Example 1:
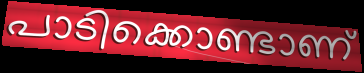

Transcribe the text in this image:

പാടിക്കൊണ്ടാണ്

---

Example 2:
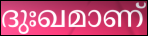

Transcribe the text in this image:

ദുഃഖമാണ്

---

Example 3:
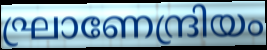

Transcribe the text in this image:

ഘ്രാണേന്ദ്രിയം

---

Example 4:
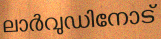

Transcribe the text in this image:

ലാർവുഡിനോട്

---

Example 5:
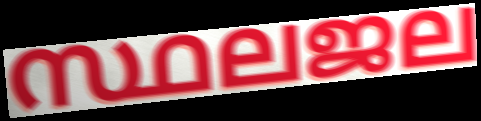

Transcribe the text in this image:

സ്ഥലജല